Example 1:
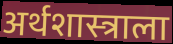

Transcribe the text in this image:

अर्थशास्त्राला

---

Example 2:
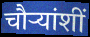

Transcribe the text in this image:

चौर्‍यांशीं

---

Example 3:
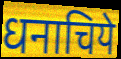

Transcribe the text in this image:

धनाचिये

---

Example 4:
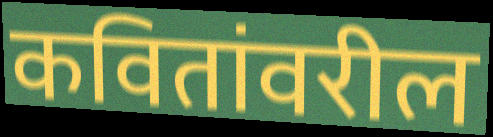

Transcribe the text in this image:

कवितांवरील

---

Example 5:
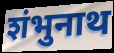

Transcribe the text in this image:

शंभुनाथ